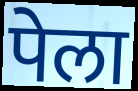
पेला